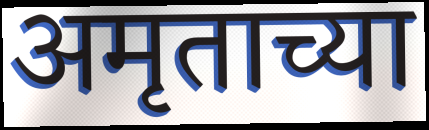
अमृताच्या